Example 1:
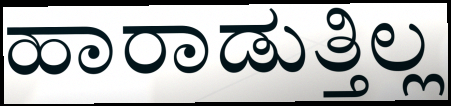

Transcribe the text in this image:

ಹಾರಾಡುತ್ತಿಲ್ಲ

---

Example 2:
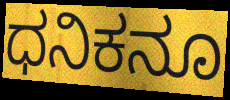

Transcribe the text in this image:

ಧನಿಕನೂ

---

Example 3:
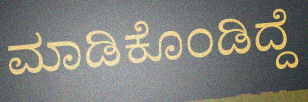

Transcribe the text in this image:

ಮಾಡಿಕೊಂಡಿದ್ದೆ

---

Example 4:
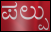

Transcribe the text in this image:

ಪಲ್ಪು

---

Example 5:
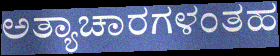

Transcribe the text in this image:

ಅತ್ಯಾಚಾರಗಳಂತಹ